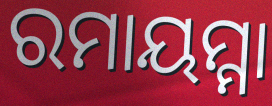
ରମାୟମ୍ମା